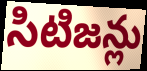
సిటిజన్లు